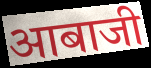
आबाजी